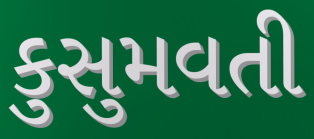
કુસુમવતી